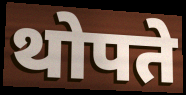
थोपते